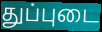
துப்புடை